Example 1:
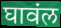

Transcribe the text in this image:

घावंल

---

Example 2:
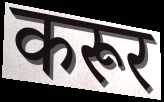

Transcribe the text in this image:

करूर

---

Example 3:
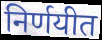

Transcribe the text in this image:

निर्णयीत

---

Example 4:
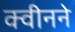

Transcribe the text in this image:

क्वीनने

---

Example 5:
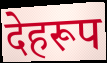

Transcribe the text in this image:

देहरूप